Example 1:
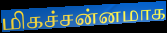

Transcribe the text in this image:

மிகச்சன்னமாக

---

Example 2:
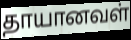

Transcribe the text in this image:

தாயானவள்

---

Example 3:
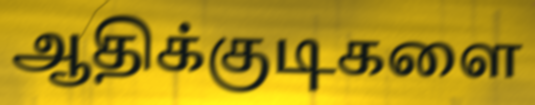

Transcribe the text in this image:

ஆதிக்குடிகளை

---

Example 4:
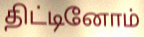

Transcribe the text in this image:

திட்டினோம்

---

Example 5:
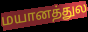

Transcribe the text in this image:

மயானத்துல